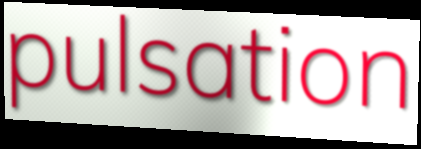
pulsation